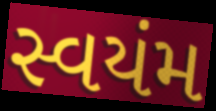
સ્વયંમ